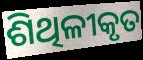
ଶିଥିଳୀକୃତ